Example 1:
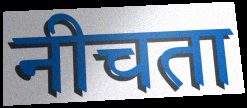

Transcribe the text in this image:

नीचता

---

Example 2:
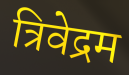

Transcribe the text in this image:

त्रिवेद्रम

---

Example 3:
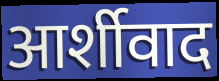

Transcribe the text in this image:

आर्शीवाद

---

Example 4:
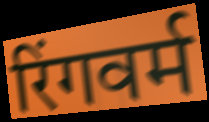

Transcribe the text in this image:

रिंगवर्म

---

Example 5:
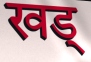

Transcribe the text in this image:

खड्